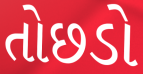
તોછડો